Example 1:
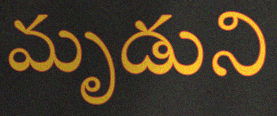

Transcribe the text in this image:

మృడుని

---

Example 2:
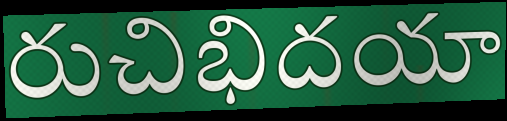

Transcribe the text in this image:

రుచిభిదయా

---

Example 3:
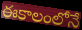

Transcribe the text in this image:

ఈకాలంలోనే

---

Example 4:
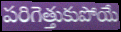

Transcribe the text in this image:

పరిగెత్తుకుపోయే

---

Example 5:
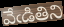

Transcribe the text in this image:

వేఁడితిని